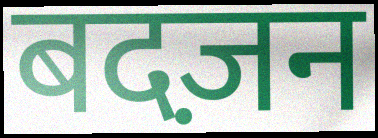
बदज़न